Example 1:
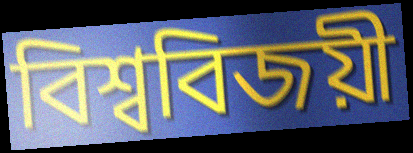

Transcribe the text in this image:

বিশ্ববিজয়ী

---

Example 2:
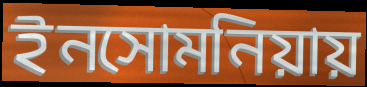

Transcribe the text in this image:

ইনসোমনিয়ায়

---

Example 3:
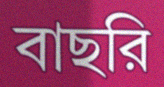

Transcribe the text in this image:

বাছরি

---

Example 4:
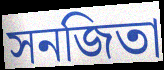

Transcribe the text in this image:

সনজিতা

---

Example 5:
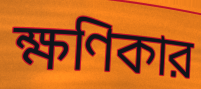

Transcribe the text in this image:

ক্ষণিকার